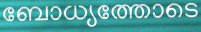
ബോധ്യത്തോടെ